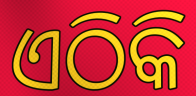
ଏଠିକି